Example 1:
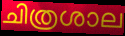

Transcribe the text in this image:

ചിത്രശാല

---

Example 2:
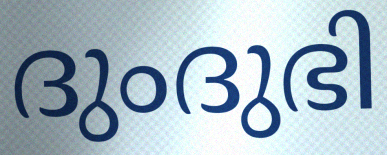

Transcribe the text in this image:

ദുംദുഭി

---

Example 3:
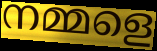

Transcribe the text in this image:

നമ്മളെ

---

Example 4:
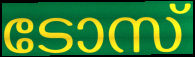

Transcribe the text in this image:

ടോസ്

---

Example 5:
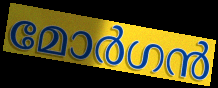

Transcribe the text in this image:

മോർഗൻ